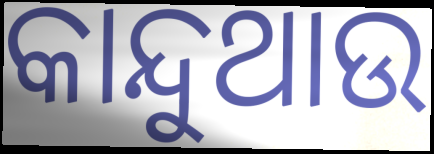
କାନ୍ଦୁଥାଉ